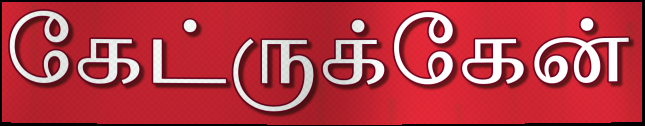
கேட்ருக்கேன்